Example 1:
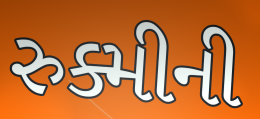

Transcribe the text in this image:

રુક્મીની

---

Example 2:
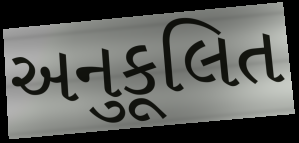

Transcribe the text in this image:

અનુકૂલિત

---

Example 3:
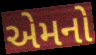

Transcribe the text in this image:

એમનો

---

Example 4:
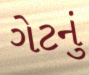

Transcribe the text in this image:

ગેટનું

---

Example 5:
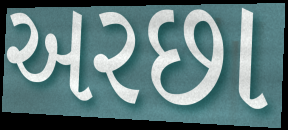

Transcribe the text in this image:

અરછા